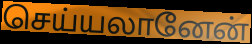
செய்யலானேன்